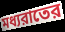
মধ্যরাতের